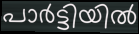
പാർട്ടിയിൽ